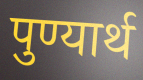
पुण्यार्थ